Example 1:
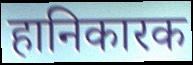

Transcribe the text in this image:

हानिकारक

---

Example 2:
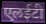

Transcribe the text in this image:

एलईटी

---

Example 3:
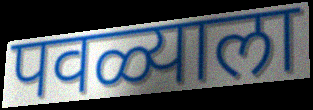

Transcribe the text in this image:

पवळ्याला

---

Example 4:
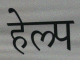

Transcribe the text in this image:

हेल्प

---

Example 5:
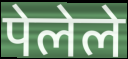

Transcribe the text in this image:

पेलेले